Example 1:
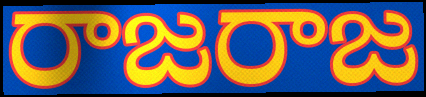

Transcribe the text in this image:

రాజరాజ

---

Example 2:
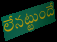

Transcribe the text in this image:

లేనట్టుందే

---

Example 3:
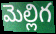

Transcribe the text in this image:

మెల్లిగ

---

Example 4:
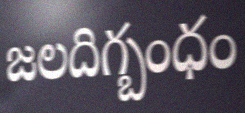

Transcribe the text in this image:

జలదిగ్బంధం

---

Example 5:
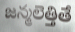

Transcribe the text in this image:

జన్మలెత్తితే